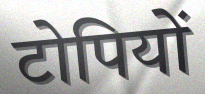
टोपियों